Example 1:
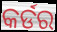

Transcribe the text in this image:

କର୍ଡର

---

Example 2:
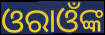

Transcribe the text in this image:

ଓରାଓଁଙ୍କ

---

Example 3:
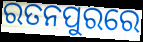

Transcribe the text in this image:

ରତନପୁରରେ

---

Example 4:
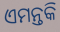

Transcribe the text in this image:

ଏମନ୍ତକି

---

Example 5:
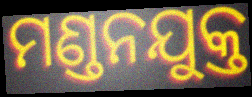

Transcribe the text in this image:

ମଣ୍ଡନଯୁକ୍ତ